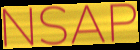
NSAP